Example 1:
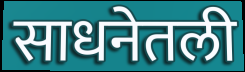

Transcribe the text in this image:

साधनेतली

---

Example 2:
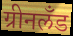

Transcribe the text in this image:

ग्रीनलँड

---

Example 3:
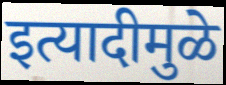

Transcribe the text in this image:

इत्यादीमुळे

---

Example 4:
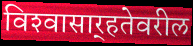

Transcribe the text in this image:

विश्वासार्हतेवरील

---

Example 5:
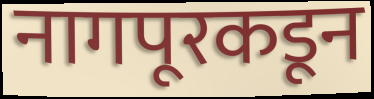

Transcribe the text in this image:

नागपूरकडून